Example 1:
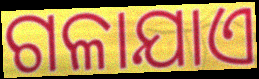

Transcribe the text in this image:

ଗଳାଯାଏ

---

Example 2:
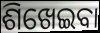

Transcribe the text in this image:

ଶିଖେଇବା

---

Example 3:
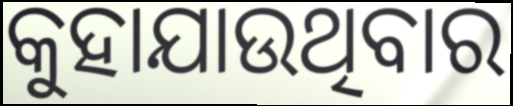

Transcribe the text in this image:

କୁହାଯାଉଥିବାର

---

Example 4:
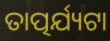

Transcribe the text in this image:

ତାତ୍ପର୍ଯ୍ୟଟା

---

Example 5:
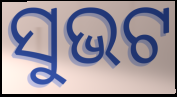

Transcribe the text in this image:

ସୁଭଟ